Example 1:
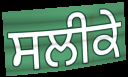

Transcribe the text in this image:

ਸਲੀਕੇ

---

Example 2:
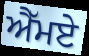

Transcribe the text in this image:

ਐੱਮਏ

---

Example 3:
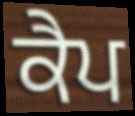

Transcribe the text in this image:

ਕੈਪ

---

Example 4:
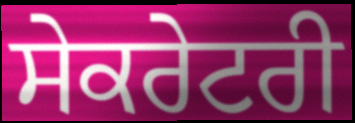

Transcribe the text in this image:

ਸੇਕਰੇਟਰੀ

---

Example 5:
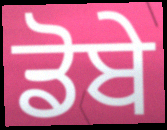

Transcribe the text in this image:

ਡੋਬੇ